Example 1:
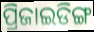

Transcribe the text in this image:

ପ୍ରିଜାଇଡିଙ୍ଗ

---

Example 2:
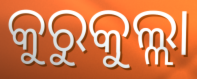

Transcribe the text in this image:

କୁରୁକୁଲ୍ଲା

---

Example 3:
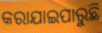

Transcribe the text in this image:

କରାଯାଇପାରୁଛି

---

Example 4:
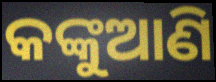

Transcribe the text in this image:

କଙ୍କୁଆଣି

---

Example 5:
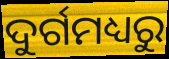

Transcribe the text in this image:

ଦୁର୍ଗମଧ୍ୟରୁ